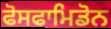
ਫੋਸਫਾਮਿਡੋਨ